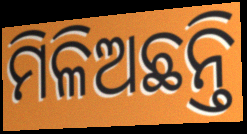
ମିଳିଅଛନ୍ତି